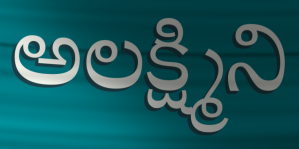
అలక్ష్మిని